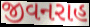
જીવનરાહ